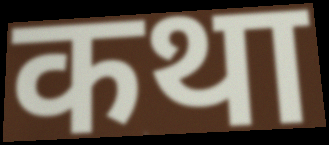
कथा